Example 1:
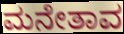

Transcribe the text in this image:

ಮನೇತಾವ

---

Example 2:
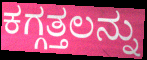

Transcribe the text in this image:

ಕಗ್ಗತ್ತಲನ್ನು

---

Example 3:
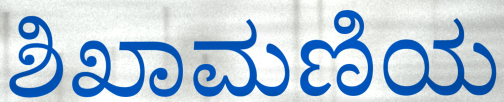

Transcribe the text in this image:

ಶಿಖಾಮಣಿಯ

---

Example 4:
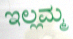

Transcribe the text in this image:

ಇಲ್ಲಮ್ಮ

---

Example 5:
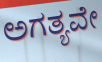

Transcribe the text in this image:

ಅಗತ್ಯವೇ